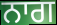
ਨਾਗ